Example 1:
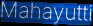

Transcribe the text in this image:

Mahayutti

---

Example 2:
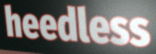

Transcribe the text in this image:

heedless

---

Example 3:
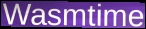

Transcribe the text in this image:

Wasmtime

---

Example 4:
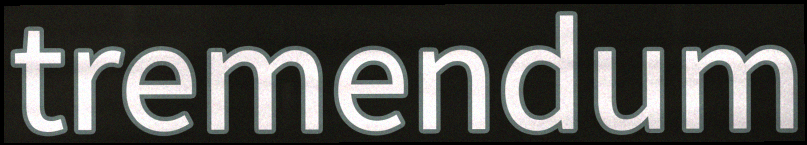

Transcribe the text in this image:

tremendum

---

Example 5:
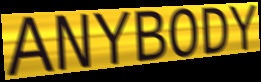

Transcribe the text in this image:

ANYBODY